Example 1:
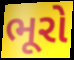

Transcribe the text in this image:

ભૂરો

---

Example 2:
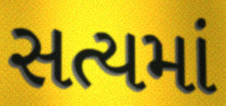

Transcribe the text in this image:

સત્યમાં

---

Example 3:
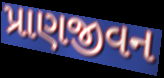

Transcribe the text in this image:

પ્રાણજીવન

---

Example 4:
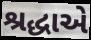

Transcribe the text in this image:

શ્રદ્ધાએ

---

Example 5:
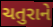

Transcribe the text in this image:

ચતુરાને